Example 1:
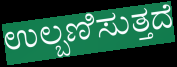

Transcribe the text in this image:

ಉಲ್ಬಣಿಸುತ್ತದೆ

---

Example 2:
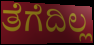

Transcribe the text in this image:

ತೆಗೆದಿಲ್ಲ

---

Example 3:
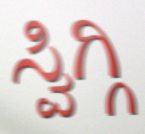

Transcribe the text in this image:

ಸ್ವಿಗ್ಗಿ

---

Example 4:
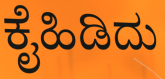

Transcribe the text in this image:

ಕೈಹಿಡಿದು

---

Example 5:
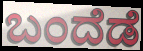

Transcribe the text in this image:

ಬಂದೆಡೆ